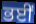
ਭਈਂ